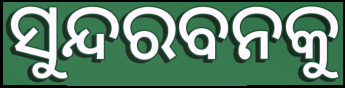
ସୁନ୍ଦରବନକୁ